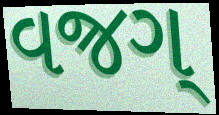
વજ્રગ્